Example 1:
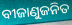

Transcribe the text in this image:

ବୀଜାଣୁଜନିତ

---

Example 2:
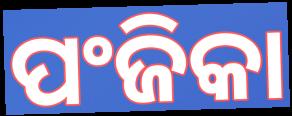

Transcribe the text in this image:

ପଂଜିକା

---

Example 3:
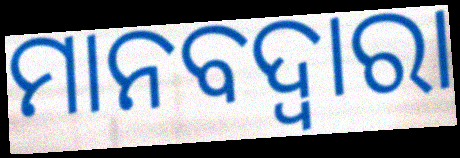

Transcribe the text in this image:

ମାନବଦ୍ୱାରା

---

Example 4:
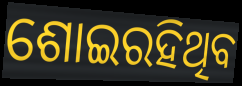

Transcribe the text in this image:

ଶୋଇରହିଥିବ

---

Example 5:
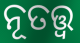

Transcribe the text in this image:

ନୂତତ୍ତ୍ବ